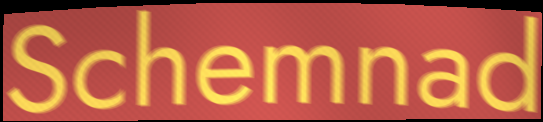
Schemnad